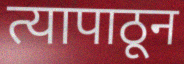
त्यापाठून